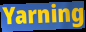
Yarning